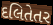
દલિતેતર